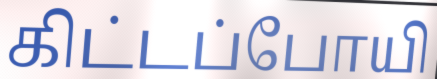
கிட்டப்போயி